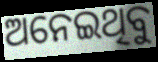
ଅନେଇଥିବୁ